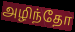
அழிந்தோ